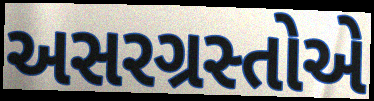
અસરગ્રસ્તોએ